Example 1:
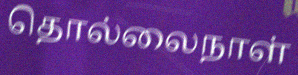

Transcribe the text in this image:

தொல்லைநாள்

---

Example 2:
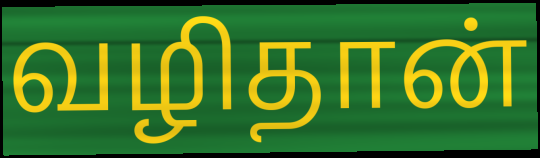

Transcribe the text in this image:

வழிதான்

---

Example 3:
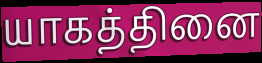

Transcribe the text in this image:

யாகத்தினை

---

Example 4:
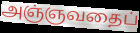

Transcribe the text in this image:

அஞ்ஞவதைப்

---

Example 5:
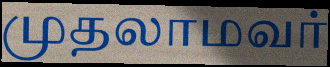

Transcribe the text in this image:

முதலாமவர்